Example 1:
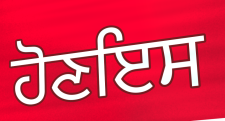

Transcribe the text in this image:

ਹੋਣਇਸ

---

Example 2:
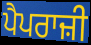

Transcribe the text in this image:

ਪੈਪਰਾਜ਼ੀ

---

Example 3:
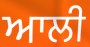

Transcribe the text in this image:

ਆਲੀ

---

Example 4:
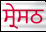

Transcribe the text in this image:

ਸ੍ਰੇਸਠ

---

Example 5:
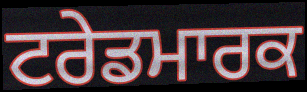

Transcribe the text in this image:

ਟਰੇਡਮਾਰਕ